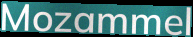
Mozammel